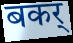
बकर्